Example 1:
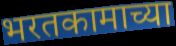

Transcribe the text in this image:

भरतकामाच्या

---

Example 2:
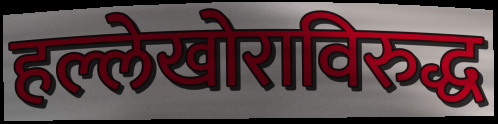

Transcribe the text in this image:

हल्लेखोराविरुद्ध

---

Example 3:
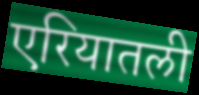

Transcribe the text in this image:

एरियातली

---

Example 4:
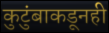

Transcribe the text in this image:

कुटुंबाकडूनही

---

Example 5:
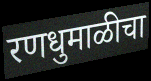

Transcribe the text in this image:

रणधुमाळीचा